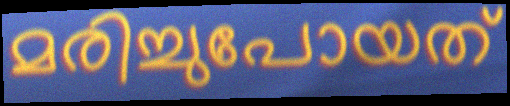
മരിച്ചുപോയത്